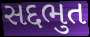
સદ્દભુત